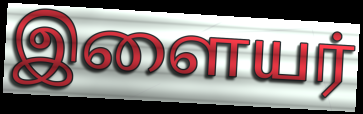
இளையர்